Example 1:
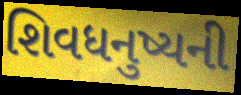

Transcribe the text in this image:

શિવધનુષ્યની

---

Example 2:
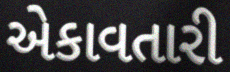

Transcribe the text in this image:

એકાવતારી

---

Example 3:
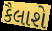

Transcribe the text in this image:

કૈલાશે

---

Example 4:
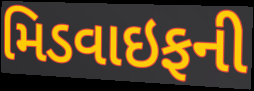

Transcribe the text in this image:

મિડવાઇફની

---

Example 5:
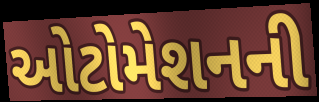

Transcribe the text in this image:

ઓટોમેશનની